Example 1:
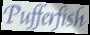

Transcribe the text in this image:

Pufferfish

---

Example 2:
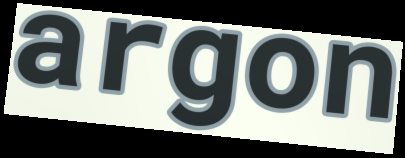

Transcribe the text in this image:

argon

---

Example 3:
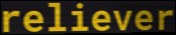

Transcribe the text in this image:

reliever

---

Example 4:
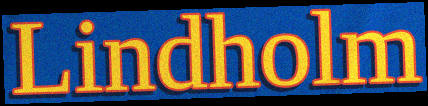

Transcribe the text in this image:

Lindholm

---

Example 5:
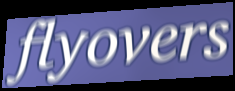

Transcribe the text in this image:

flyovers